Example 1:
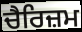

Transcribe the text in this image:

ਚੈਰਿਜ਼ਮ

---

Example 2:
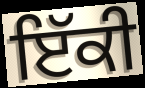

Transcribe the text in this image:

ਇੱਕੀ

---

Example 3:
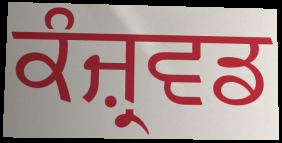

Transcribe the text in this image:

ਕੰਜ਼੍ਰਵਡ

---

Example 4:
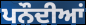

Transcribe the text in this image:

ਪਨੌਦੀਆਂ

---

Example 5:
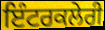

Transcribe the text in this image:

ਇੰਟਰਕਲੇਰੀ